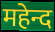
महेन्द